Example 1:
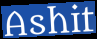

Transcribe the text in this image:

Ashit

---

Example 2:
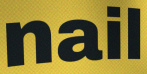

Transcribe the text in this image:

nail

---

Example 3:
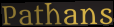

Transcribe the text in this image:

Pathans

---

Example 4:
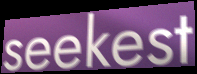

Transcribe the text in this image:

seekest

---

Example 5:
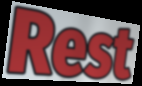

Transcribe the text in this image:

Rest